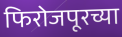
फिरोजपूरच्या